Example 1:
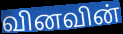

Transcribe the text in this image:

வினவின்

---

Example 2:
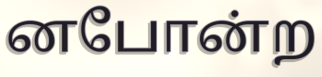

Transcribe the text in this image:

னபோன்ற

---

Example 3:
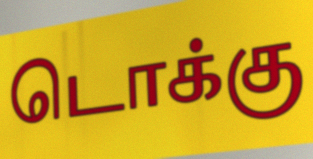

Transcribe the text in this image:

டொக்கு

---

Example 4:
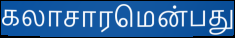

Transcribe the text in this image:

கலாசாரமென்பது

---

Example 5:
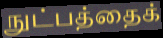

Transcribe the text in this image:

நுட்பத்தைக்